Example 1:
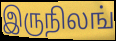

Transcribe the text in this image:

இருநிலங்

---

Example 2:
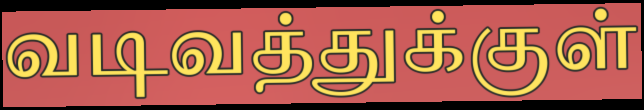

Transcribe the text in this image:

வடிவத்துக்குள்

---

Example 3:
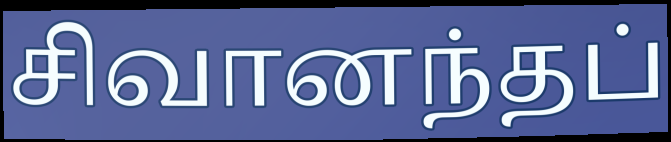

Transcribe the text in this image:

சிவானந்தப்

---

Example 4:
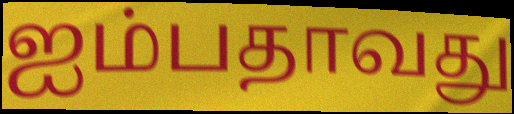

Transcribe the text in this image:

ஐம்பதாவது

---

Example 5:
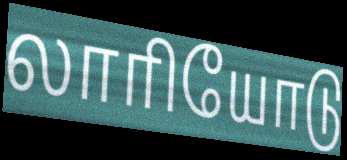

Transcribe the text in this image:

லாரியோடு